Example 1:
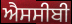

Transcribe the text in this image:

ਐਸਸੀਬੀ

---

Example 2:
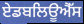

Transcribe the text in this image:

ਏਡਬਲਿਊਐੱਸ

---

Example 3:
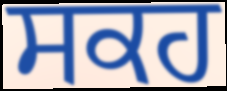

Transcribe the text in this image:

ਸਕਹ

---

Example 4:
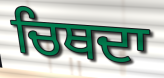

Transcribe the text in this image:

ਚਿਥਦਾ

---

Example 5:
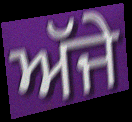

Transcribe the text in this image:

ਅੱਜੇ